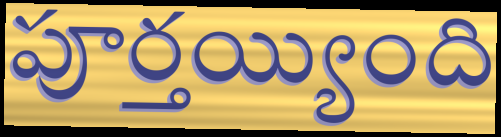
పూర్తయ్యింది